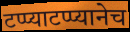
टप्प्याटप्प्यानेच